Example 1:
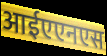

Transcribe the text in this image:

आईएएनएस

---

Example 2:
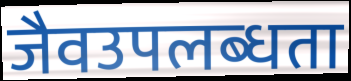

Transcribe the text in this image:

जैवउपलब्धता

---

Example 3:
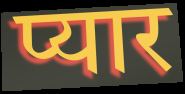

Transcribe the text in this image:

प्यार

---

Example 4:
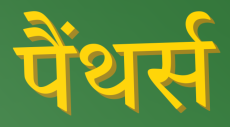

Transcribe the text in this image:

पैंथर्स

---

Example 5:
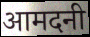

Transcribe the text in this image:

आमदनी